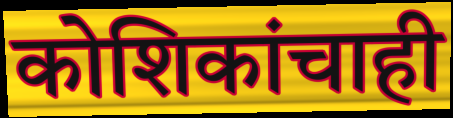
कोशिकांचाही